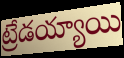
ట్రేడయ్యాయి